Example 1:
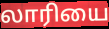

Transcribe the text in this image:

லாரியை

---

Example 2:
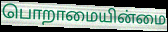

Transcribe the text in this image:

பொறாமையின்மை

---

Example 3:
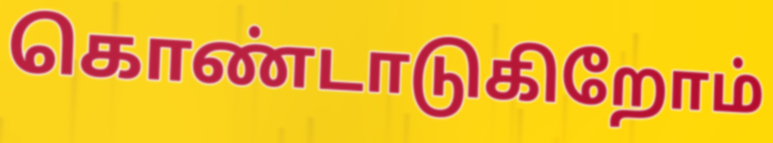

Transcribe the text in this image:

கொண்டாடுகிறோம்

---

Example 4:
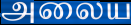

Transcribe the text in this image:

அலைய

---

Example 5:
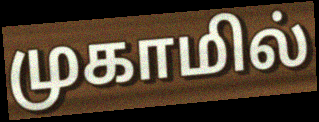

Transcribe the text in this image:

முகாமில்